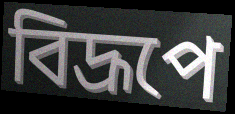
বিদ্রূপে